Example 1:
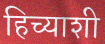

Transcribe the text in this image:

हिच्याशी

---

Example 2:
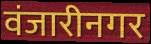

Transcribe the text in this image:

वंजारीनगर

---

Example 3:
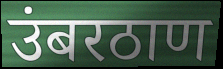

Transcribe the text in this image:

उंबरठाण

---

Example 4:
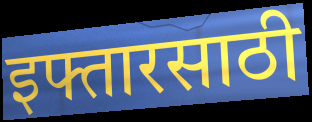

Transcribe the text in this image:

इफ्तारसाठी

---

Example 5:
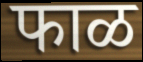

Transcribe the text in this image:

फाळ